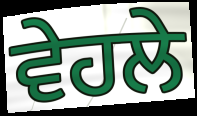
ਵੇਹਲੇ